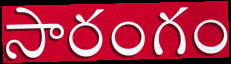
సారంగం